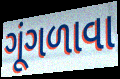
ગૂંગળાવા